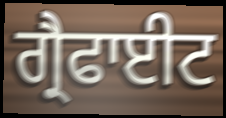
ਗ੍ਰੈਫਾਈਟ